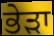
ਭੇੜਾ